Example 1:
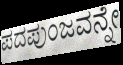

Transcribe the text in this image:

ಪದಪುಂಜವನ್ನೇ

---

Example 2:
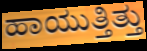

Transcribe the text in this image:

ಹಾಯುತ್ತಿತ್ತು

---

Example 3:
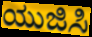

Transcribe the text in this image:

ಯುಜಿಸಿ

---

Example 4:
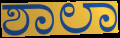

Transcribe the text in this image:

ಶಾಲಾ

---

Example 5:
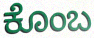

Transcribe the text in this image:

ಕೊಂಬ